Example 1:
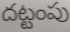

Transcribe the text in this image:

దట్టంపు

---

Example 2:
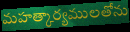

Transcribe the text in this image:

మహత్కార్యములతోను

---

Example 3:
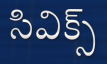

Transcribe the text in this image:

సివిక్స్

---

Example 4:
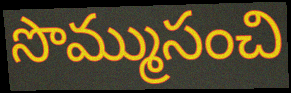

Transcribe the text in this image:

సొమ్ముసంచి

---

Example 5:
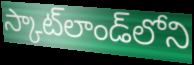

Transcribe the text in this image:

స్కాట్‌లాండ్‌లోని